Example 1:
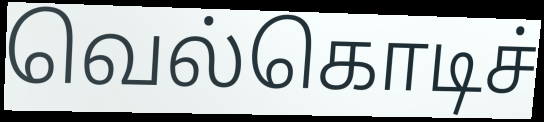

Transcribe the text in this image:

வெல்கொடிச்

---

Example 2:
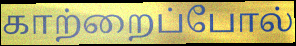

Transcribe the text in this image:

காற்றைப்போல்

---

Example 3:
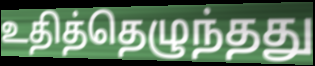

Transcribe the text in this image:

உதித்தெழுந்தது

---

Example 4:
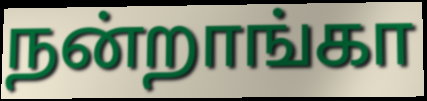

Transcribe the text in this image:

நன்றாங்கா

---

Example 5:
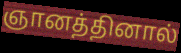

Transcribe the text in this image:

ஞானத்தினால்